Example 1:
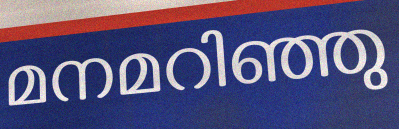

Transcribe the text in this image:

മനമറിഞ്ഞു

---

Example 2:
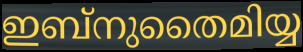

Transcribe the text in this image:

ഇബ്നുതൈമിയ്യ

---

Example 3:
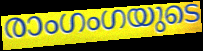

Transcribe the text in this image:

രാംഗംഗയുടെ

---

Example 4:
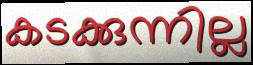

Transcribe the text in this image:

കടക്കുന്നില്ല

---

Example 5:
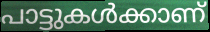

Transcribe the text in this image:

പാട്ടുകൾക്കാണ്